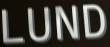
LUND